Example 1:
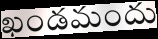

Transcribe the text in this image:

ఖండమందు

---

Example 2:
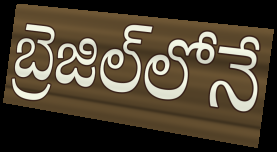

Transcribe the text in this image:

బ్రెజిల్‌లోనే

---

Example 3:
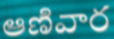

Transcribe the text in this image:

ఆణివార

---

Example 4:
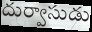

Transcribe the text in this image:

దుర్వాసుడు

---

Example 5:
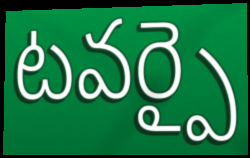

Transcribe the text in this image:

టవర్పై